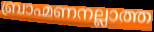
ബ്രാഹ്മണനല്ലാത്ത